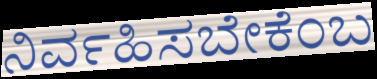
ನಿರ್ವಹಿಸಬೇಕೆಂಬ